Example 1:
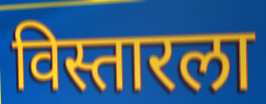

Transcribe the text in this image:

विस्तारला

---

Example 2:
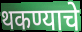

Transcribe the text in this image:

थकण्याचे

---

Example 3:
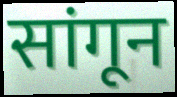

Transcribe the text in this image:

सांगून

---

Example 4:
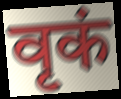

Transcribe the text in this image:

वृकं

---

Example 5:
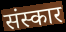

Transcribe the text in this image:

संस्कार